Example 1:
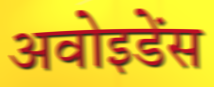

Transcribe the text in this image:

अवोइडेंस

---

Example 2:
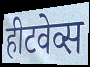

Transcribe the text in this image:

हीटवेव्स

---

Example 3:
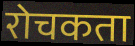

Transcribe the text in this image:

रोचकता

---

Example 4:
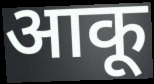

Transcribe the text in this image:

आकू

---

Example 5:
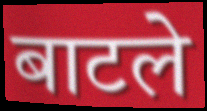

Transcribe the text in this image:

बाटले